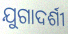
ଯୁଗାଦର୍ଶୀ